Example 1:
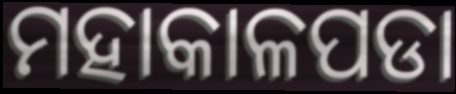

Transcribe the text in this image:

ମହାକାଳପଡା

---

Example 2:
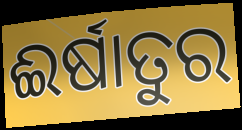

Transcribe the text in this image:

ଈର୍ଷାତୁର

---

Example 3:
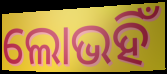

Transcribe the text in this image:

ଲୋଭହିଁ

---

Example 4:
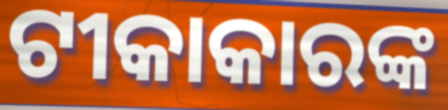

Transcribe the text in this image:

ଟୀକାକାରଙ୍କ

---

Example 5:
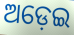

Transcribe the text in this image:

ଅଡ଼େଇ